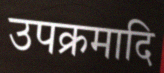
उपक्रमादि